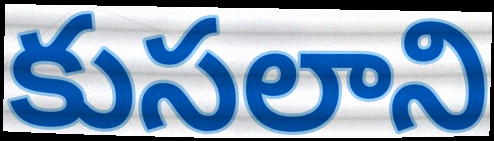
కుసలాని